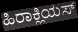
ಹಿರಾಕ್ಲಿಯಸ್